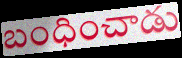
బంధించాడు